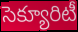
సెక్యూరిటీ